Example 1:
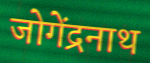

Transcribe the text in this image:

जोगेंद्रनाथ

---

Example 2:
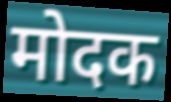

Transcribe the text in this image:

मोदक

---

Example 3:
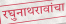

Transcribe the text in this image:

रघुनाथरावांचा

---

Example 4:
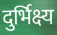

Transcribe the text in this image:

दुर्भिक्ष्य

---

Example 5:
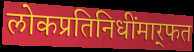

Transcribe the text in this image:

लोकप्रतिनिधींमार्फत